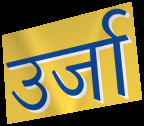
उर्जा